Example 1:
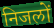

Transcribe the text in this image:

निजलों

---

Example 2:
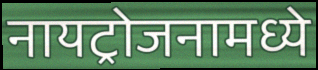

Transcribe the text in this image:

नायट्रोजनामध्ये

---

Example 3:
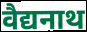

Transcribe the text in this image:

वैद्यनाथ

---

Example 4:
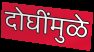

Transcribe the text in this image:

दोघींमुळे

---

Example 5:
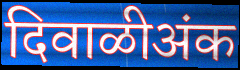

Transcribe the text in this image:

दिवाळीअंक